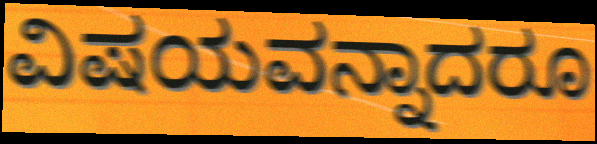
ವಿಷಯವನ್ನಾದರೂ